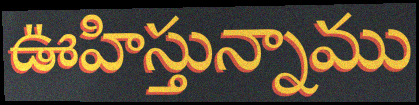
ఊహిస్తున్నాము